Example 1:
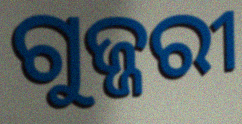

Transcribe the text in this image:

ଗୁଜ୍ଜରୀ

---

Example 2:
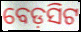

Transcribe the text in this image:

ବେଡ଼ସିଟ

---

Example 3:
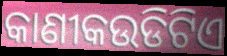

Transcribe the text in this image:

କାଣୀକଉଡିଟିଏ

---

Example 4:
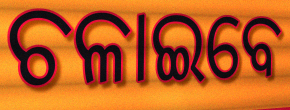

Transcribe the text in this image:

ଚଳାଇବେ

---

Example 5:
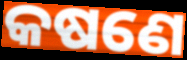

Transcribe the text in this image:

କଷଣେ